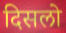
दिसलो